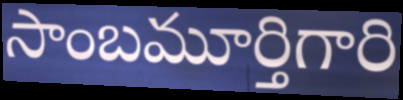
సాంబమూర్తిగారి